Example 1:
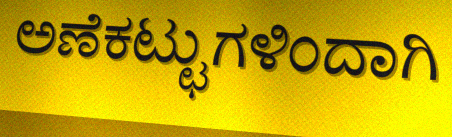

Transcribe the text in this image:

ಅಣೆಕಟ್ಟುಗಳಿಂದಾಗಿ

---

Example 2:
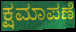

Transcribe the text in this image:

ಕ್ಷಮಾಪಣೆ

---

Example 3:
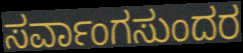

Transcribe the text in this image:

ಸರ್ವಾಂಗಸುಂದರ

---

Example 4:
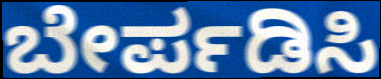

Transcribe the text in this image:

ಬೇರ್ಪಡಿಸಿ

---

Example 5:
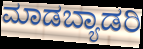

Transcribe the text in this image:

ಮಾಡಬ್ಯಾಡರಿ